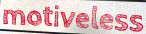
motiveless